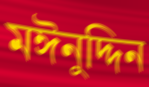
মঈনুদ্দিন